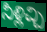
నీళ్లిచ్చి